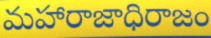
మహారాజాధిరాజం